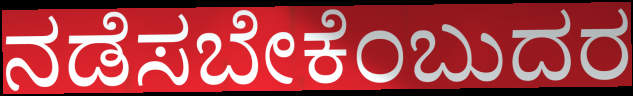
ನಡೆಸಬೇಕೆಂಬುದರ